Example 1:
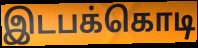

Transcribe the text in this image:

இடபக்கொடி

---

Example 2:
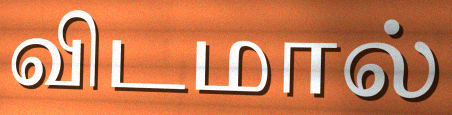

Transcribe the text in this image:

விடமால்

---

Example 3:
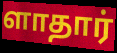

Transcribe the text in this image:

ளாதார்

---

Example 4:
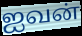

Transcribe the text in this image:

ஐவன்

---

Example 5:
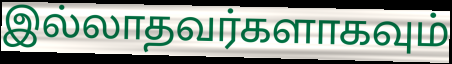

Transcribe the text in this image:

இல்லாதவர்களாகவும்